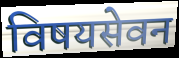
विषयसेवन